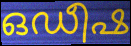
ഒഡീഷ